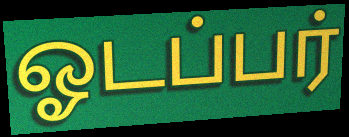
ஓடப்பர்